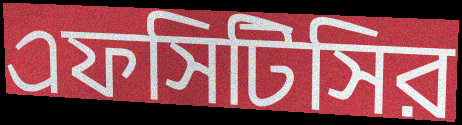
এফসিটিসির